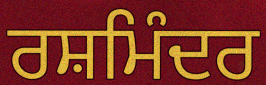
ਰਸ਼ਮਿੰਦਰ